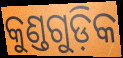
କୁଣ୍ଡଗୁଡ଼ିକ